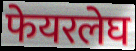
फेयरलेघ